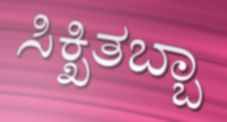
ಸಿಕ್ಖಿತಬ್ಬಾ